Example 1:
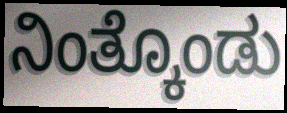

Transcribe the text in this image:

ನಿಂತ್ಕೊಂಡು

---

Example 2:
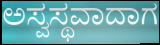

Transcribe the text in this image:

ಅಸ್ವಸ್ಥವಾದಾಗ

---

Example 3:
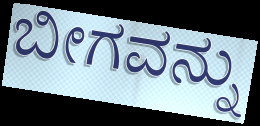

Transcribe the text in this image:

ಬೀಗವನ್ನು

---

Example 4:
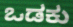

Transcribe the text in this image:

ಒಡಕು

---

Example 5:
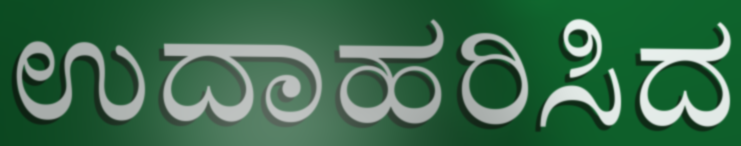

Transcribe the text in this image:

ಉದಾಹರಿಸಿದ